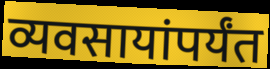
व्यवसायांपर्यंत